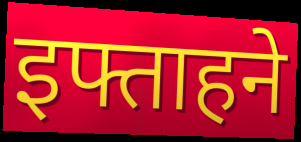
इफ्ताहने